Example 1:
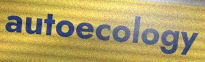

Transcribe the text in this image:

autoecology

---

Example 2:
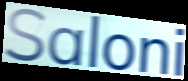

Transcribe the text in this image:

Saloni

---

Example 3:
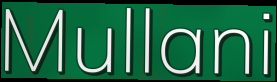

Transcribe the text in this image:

Mullani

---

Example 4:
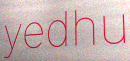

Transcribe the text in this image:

yedhu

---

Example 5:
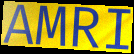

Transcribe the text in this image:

AMRI